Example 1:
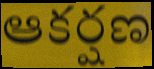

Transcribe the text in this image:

ఆకర్షణ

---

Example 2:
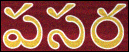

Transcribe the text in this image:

పసర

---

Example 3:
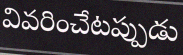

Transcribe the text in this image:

వివరించేటప్పుడు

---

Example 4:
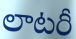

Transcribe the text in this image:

లాటరీ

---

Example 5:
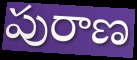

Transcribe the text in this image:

పురాణ